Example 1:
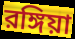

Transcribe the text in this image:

রঙ্গিয়া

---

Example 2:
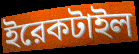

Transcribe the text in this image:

ইরেকটাইল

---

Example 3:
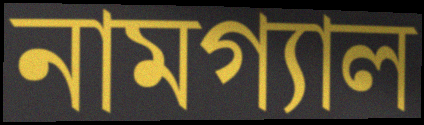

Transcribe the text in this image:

নামগ্যাল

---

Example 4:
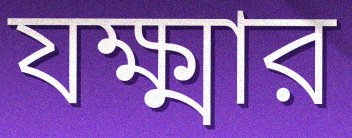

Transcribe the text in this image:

যক্ষ্মার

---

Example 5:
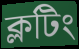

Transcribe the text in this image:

ক্লটিং